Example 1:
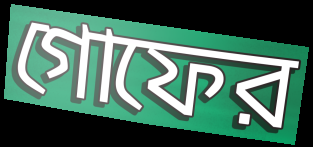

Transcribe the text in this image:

গোফের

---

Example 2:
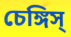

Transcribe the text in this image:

চেঙ্গিস্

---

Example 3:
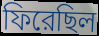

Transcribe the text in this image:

ফিরেছিল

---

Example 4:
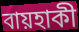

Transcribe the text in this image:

বায়হাকী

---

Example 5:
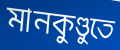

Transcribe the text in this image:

মানকুণ্ডুতে